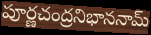
పూర్ణచంద్రనిభాననామ్